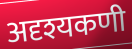
अदृश्यकणी